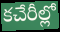
కచేరీల్లో